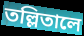
তল্লিতালে